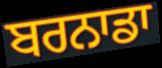
ਬਰਨਾਡਾ